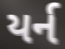
યર્ન